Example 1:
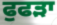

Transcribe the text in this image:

ਫੁਫੜਾ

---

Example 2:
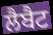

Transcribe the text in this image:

ਲੈਬੈਟ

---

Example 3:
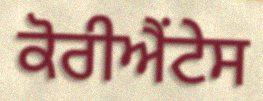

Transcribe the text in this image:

ਕੋਰੀਐਂਟੇਸ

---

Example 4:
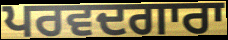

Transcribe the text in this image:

ਪਰਵਦਗਾਰਾ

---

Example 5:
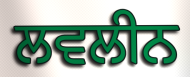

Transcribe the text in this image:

ਲਵਲੀਨ